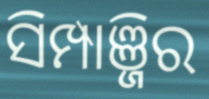
ସିମ୍ପାଞ୍ଜିର